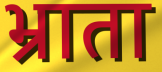
भ्राता